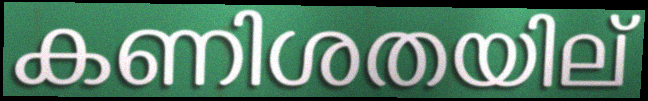
കണിശതയില്